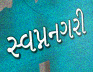
સ્વપ્નનગરી